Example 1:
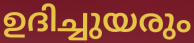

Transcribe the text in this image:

ഉദിച്ചുയരും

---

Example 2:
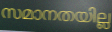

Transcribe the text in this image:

സമാനതയില്ല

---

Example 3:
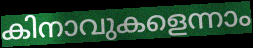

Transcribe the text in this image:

കിനാവുകളെന്നാം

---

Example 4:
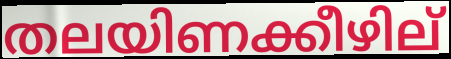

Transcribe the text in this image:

തലയിണക്കീഴില്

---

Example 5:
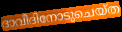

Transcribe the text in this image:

ദാവീദിനോടുചെയ്ത